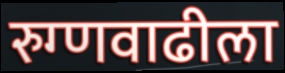
रुग्णवाढीला